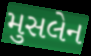
મુસલેન